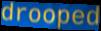
drooped